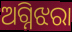
ଅଗ୍ନିଝରା